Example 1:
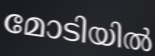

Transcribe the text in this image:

മോടിയിൽ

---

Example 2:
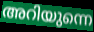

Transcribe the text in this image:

അറിയുന്നെ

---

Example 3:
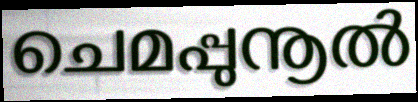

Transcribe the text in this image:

ചെമപ്പുനൂൽ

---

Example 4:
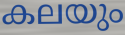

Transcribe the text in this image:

കലയും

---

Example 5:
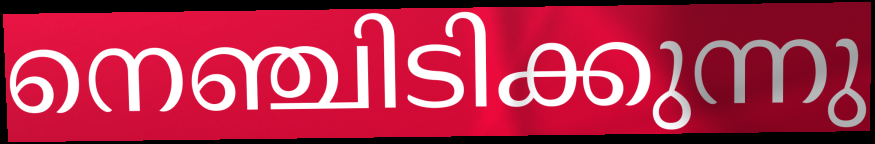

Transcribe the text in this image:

നെഞ്ചിടിക്കുന്നു